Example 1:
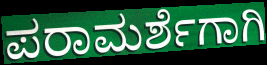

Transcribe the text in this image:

ಪರಾಮರ್ಶೆಗಾಗಿ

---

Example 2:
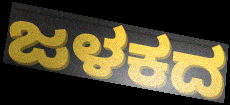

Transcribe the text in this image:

ಜಳಕದ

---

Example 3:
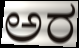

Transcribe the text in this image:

ಅರ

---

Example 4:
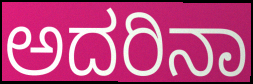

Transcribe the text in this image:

ಅದರಿನಾ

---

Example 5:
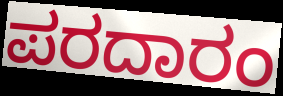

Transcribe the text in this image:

ಪರದಾರಂ